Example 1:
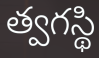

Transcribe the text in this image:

త్వగస్థి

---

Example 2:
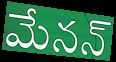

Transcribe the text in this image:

మేనన్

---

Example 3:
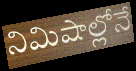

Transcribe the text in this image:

నిమిషాల్లోనే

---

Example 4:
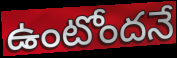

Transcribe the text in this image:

ఉంటోందనే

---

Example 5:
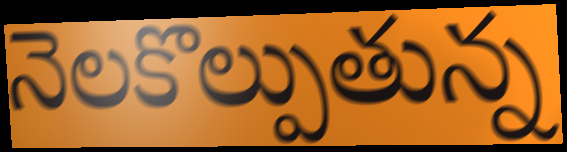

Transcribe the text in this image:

నెలకొల్పుతున్న